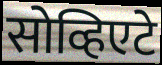
सोव्हिएटे